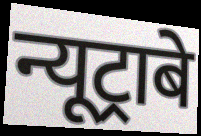
न्यूट्राबे